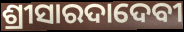
ଶ୍ରୀସାରଦାଦେବୀ